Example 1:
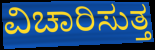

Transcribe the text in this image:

ವಿಚಾರಿಸುತ್ತ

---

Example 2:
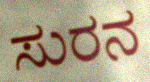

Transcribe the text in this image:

ಸುರನ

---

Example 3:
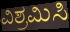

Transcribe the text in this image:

ವಿಶ್ರಮಿಸಿ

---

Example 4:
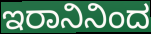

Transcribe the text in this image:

ಇರಾನಿನಿಂದ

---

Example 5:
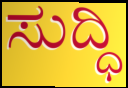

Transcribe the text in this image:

ಸುದ್ಧಿ